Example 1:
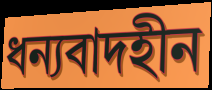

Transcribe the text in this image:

ধন্যবাদহীন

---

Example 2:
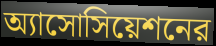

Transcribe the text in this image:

অ্যাসোসিয়েশনের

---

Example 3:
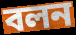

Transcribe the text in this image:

বলন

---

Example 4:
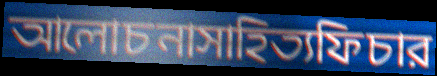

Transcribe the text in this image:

আলোচনাসাহিত্যফিচার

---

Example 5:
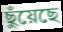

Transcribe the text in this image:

ছুঁয়েছে